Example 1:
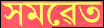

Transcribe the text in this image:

সমৱেত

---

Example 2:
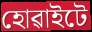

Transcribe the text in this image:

হোৱাইটে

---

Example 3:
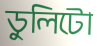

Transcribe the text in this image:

ডুলিটো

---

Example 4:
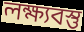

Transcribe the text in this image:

লক্ষ্যবস্তু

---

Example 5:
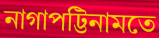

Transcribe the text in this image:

নাগাপট্টিনামতে